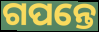
ଗପନ୍ତେ